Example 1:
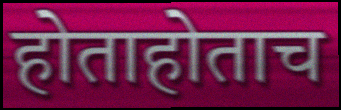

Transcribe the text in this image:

होताहोताच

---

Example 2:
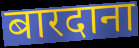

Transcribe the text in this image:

बारदाना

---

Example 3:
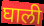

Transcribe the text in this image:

घाली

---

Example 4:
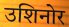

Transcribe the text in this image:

उशिनोर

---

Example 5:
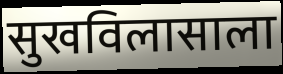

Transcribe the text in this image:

सुखविलासाला